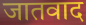
जातवाद